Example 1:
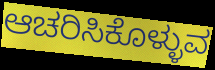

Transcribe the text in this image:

ಆಚರಿಸಿಕೊಳ್ಳುವ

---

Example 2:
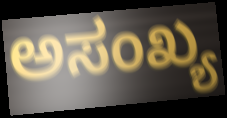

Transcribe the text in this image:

ಅಸಂಖ್ಯ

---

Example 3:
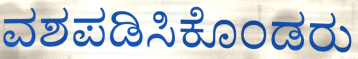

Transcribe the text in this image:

ವಶಪಡಿಸಿಕೊಂಡರು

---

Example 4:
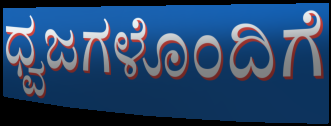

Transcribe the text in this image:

ಧ್ವಜಗಳೊಂದಿಗೆ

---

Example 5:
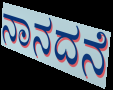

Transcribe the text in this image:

ನಾನದನೆ